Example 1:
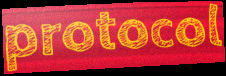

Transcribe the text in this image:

protocol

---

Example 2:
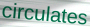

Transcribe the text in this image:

circulates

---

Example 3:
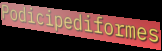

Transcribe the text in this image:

Podicipediformes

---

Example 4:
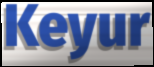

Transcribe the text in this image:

Keyur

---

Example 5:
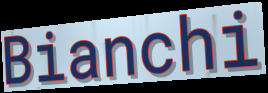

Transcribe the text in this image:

Bianchi